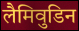
लैमिवुडिन